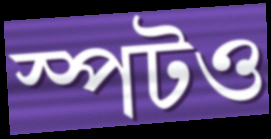
স্পটও